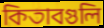
কিতাবগুলি